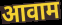
आवाम